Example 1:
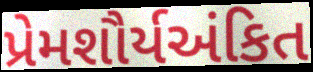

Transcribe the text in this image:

પ્રેમશૌર્યઅંકિત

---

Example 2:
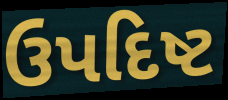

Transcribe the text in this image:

ઉપદિષ્ટ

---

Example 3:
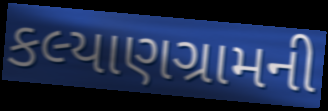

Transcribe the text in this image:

કલ્યાણગ્રામની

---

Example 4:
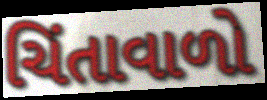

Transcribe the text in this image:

ચિંતાવાળો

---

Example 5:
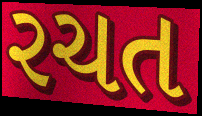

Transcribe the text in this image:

રચત